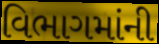
વિભાગમાંની